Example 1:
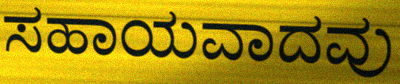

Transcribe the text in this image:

ಸಹಾಯವಾದವು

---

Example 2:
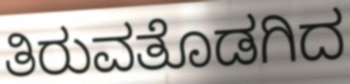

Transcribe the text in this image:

ತಿರುವತೊಡಗಿದ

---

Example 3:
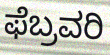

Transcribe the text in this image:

ಫೆಬ್ರವರಿ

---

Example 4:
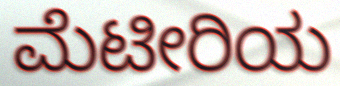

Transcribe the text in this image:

ಮೆಟೀರಿಯ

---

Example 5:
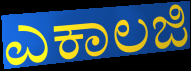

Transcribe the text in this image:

ಎಕಾಲಜಿ